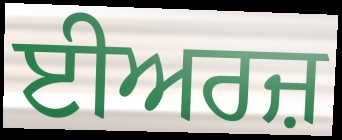
ਈਅਰਜ਼